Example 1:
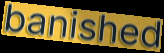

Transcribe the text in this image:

banished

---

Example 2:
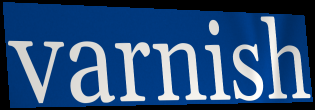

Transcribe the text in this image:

varnish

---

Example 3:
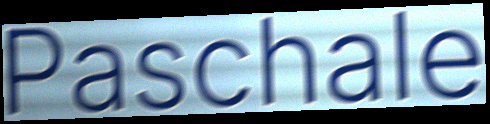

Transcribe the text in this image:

Paschale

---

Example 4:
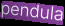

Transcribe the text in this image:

pendula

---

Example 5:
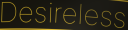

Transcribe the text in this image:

Desireless